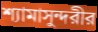
শ্যামাসুন্দরীর